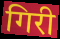
गिरी